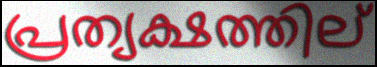
പ്രത്യക്ഷത്തില്